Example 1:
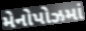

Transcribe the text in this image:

મેનોપોઝમાં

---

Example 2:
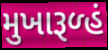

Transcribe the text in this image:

મુખારૂળ્હં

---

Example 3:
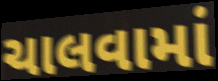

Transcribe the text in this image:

ચાલવામાં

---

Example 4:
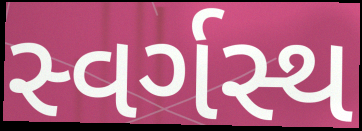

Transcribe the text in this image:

સ્વર્ગસ્થ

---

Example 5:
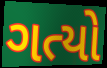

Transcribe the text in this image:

ગત્યો